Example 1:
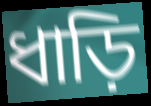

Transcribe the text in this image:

ধাড়ি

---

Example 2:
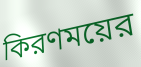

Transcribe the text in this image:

কিরণময়ের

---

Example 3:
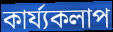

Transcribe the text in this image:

কার্য্যকলাপ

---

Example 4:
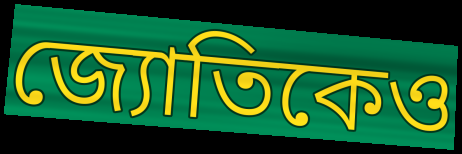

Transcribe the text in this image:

জ্যোতিকেও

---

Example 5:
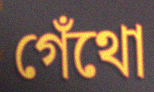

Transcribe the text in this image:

গেঁথো